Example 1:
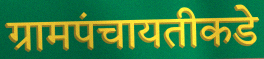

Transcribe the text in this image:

ग्रामपंचायतीकडे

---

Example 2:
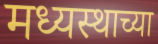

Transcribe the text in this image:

मध्यस्थाच्या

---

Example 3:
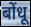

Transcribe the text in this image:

बोंधू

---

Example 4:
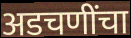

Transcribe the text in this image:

अडचणींचा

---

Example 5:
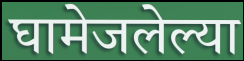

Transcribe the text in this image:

घामेजलेल्या